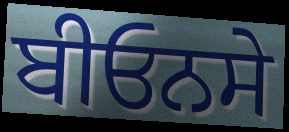
ਬੀਓਨਸੇ